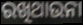
ରଖିଥାଉନା